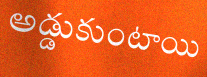
అడ్డుకుంటాయి